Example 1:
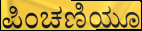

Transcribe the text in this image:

ಪಿಂಚಣಿಯೂ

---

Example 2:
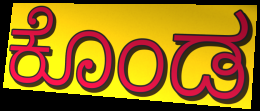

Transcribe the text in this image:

ಕೊಂಡ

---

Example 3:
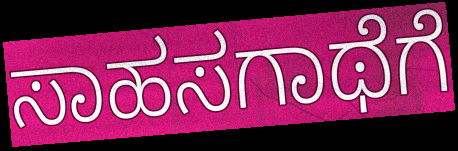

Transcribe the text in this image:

ಸಾಹಸಗಾಥೆಗೆ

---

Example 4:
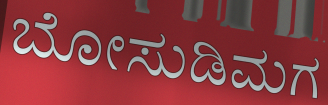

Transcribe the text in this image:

ಬೋಸುಡಿಮಗ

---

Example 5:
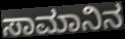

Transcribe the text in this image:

ಸಾಮಾನಿನ